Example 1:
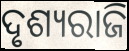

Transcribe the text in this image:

ଦୃଶ୍ୟରାଜି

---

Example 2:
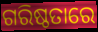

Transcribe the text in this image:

ଗରିଷ୍ଠତାରେ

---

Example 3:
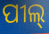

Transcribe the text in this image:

ପୀଲ୍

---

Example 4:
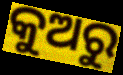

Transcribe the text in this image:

କୁଅରୁ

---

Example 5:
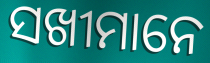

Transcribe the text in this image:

ସଖୀମାନେ